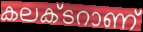
കലക്ടറാണ്